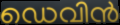
ഡെവിൻ